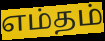
எம்தம்